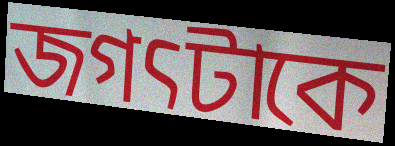
জগৎটাকে